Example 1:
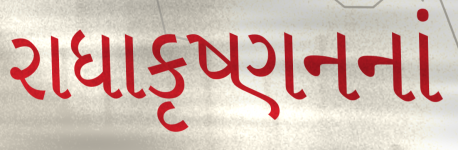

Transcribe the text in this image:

રાધાકૃષ્ણનનાં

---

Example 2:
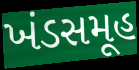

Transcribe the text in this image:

ખંડસમૂહ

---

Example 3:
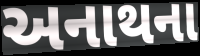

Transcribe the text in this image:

અનાથના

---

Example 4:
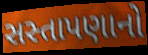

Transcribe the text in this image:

સસ્તાપણાનો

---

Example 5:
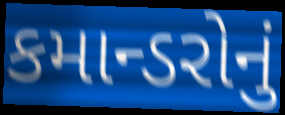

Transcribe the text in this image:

કમાન્ડરોનું